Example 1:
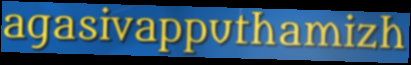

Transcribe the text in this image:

agasivapputhamizh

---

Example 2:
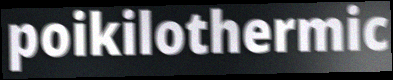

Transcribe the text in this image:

poikilothermic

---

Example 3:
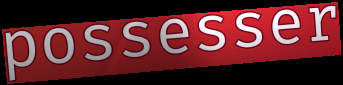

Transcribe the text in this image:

possesser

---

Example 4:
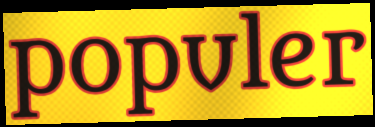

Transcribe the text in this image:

populer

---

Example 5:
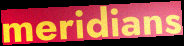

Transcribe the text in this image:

meridians